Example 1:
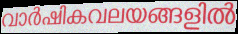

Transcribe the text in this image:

വാർഷികവലയങ്ങളിൽ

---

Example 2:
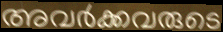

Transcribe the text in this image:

അവർക്കവരുടെ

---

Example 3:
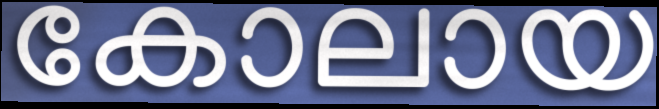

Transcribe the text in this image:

കോലായ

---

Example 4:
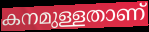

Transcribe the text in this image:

കനമുള്ളതാണ്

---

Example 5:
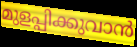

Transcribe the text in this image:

മുളപ്പിക്കുവാൻ